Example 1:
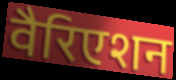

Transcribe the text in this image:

वैरिएशन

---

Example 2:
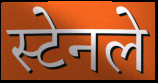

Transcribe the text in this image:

स्टेनले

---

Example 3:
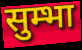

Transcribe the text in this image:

सुम्भा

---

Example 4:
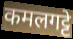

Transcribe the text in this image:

कमलगट्टे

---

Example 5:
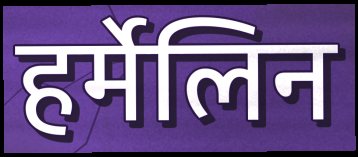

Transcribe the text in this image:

हर्मेलिन